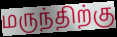
மருந்திற்கு